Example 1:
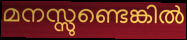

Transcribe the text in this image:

മനസ്സുണ്ടെങ്കിൽ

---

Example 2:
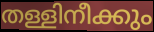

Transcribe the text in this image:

തള്ളിനീക്കും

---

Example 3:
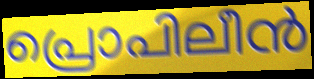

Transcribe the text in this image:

പ്രൊപിലീൻ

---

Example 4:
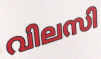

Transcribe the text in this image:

വിലസി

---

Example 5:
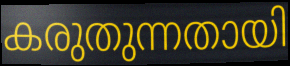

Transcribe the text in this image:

കരുതുന്നതായി